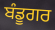
ਬੰਡੂਗਰ